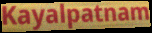
Kayalpatnam